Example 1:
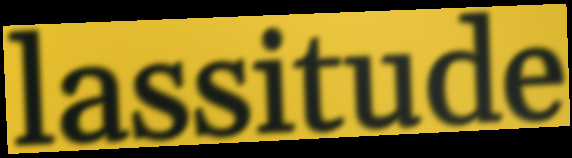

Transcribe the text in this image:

lassitude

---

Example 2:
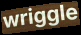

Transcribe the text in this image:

wriggle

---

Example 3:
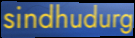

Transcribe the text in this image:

sindhudurg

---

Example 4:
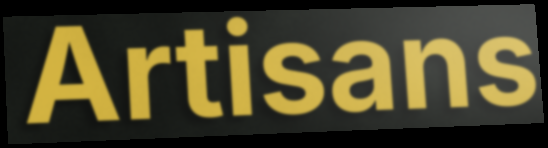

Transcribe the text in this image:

Artisans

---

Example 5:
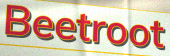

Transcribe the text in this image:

Beetroot